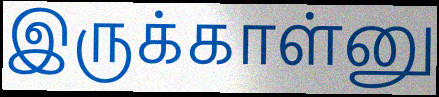
இருக்காள்னு